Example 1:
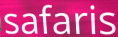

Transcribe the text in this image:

safaris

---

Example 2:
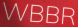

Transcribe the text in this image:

WBBR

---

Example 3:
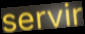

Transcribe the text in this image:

servir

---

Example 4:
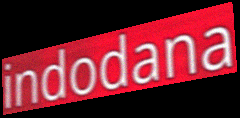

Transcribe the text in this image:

indodana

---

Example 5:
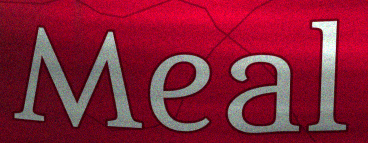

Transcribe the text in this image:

Meal